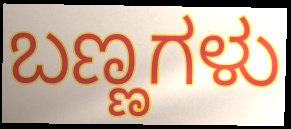
ಬಣ್ಣಗಳು